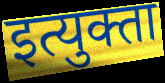
इत्युक्ता